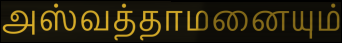
அஸ்வத்தாமனையும்